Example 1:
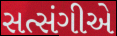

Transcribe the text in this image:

સત્સંગીએ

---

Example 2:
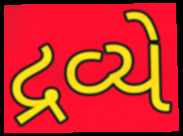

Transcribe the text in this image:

દ્રવ્યે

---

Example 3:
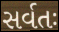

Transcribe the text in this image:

સર્વતઃ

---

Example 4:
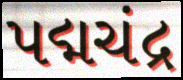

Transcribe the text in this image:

પદ્મચંદ્ર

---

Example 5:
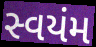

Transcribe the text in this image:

સ્વયંમ